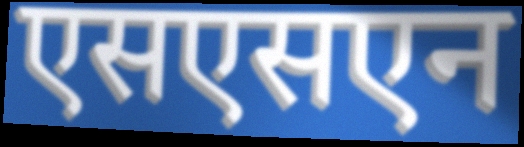
एसएसएन